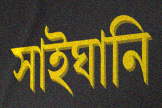
সাইঘানি